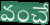
వంచే